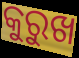
କୁରୁଖ